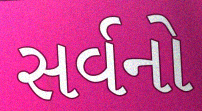
સર્વનો